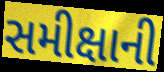
સમીક્ષાની